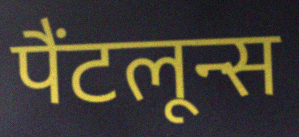
पैंटलून्स